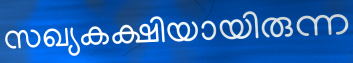
സഖ്യകക്ഷിയായിരുന്ന